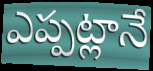
ఎప్పట్లానే